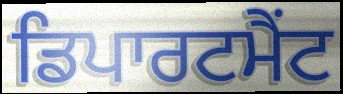
ਡਿਪਾਰਟਮੈਂਟ